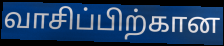
வாசிப்பிற்கான